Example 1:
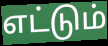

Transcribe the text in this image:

எட்டும்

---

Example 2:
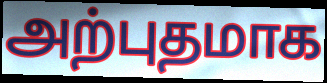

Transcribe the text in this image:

அற்புதமாக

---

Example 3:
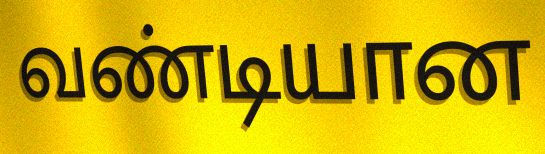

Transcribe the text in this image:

வண்டியான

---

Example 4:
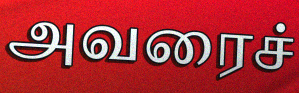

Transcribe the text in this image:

அவரைச்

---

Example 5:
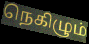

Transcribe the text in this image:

நெகிழும்